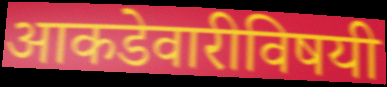
आकडेवारीविषयी